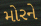
મોરને